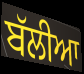
ਬੱਲੀਆ